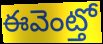
ఈవెంట్తో